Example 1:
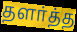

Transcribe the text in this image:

தளர்த்த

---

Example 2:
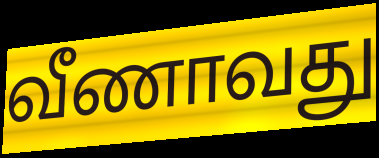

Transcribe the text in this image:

வீணாவது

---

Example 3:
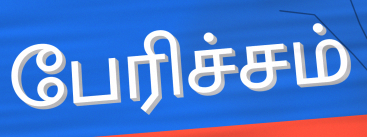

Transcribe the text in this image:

பேரிச்சம்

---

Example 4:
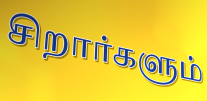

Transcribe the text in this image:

சிறார்களும்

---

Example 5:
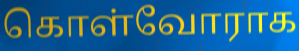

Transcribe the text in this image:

கொள்வோராக